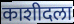
काशीदला